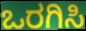
ಒರಗಿಸಿ